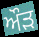
ਔਡ਼